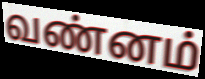
வண்னம்